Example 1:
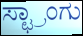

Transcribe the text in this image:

ಸ್ಟ್ರಾಂಗು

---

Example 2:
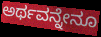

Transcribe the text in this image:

ಅರ್ಥವನ್ನೇನೂ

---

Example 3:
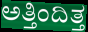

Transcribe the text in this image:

ಅತ್ತಿಂದಿತ್ತ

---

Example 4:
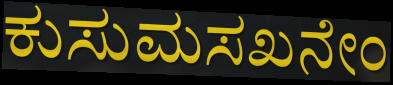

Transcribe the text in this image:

ಕುಸುಮಸಖನೇಂ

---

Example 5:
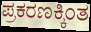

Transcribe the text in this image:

ಪ್ರಕರಣಕ್ಕಿಂತ